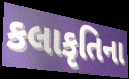
કલાકૃતિના